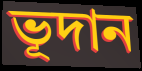
ভূদান